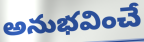
అనుభవించే